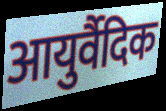
आयुर्वैदिक